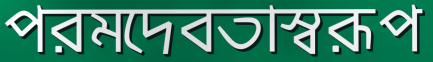
পরমদেবতাস্বরূপ